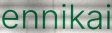
ennikai